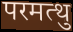
परमत्थु